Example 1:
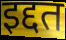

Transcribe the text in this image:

इद्दत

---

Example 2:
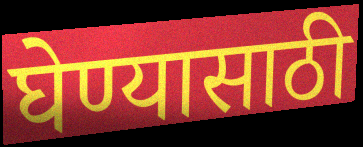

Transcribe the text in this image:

घेण्यासाठी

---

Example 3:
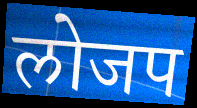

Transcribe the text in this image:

लोजप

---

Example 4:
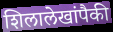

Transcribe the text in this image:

शिलालेखांपैकी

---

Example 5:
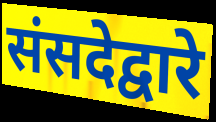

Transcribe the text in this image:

संसदेद्वारे